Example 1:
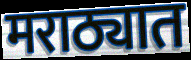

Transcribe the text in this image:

मराठ्यात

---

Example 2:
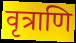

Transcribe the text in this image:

वृत्राणि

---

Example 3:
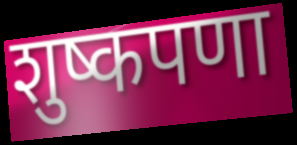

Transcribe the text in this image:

शुष्कपणा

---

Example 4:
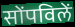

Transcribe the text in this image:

सोंपविलें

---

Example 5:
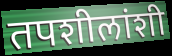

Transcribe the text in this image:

तपशीलांशी